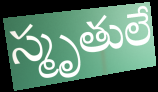
స్మృతులే